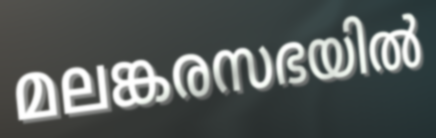
മലങ്കരസഭയിൽ